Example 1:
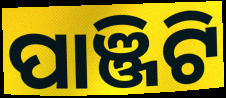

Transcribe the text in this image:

ପାଞ୍ଜିଟି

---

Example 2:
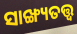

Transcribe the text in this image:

ସାଙ୍ଖ୍ୟତତ୍ତ୍ଵ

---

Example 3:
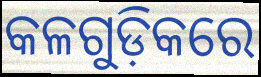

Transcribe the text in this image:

କଳଗୁଡ଼ିକରେ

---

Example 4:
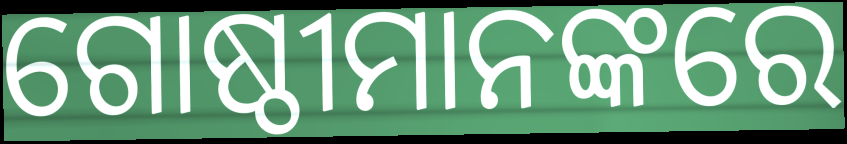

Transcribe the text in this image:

ଗୋଷ୍ଠୀମାନଙ୍କରେ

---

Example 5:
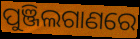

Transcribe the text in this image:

ପୁଞ୍ଜିଲଗାଣରେ